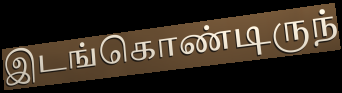
இடங்கொண்டிருந்